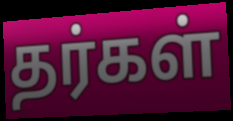
தர்கள்